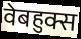
वेबहुक्स